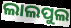
ଲାଲପୁଲ